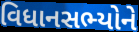
વિધાનસભ્યોને